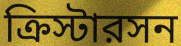
ক্রিস্টারসন